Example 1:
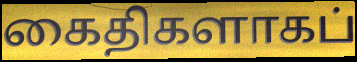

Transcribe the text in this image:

கைதிகளாகப்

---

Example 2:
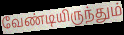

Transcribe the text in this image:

வேண்டியிருந்தும்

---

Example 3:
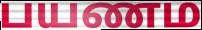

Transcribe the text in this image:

பயணம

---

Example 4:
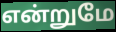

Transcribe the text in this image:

என்றுமே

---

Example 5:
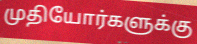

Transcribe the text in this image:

முதியோர்களுக்கு